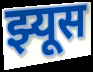
झ्यूस